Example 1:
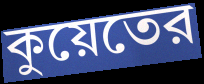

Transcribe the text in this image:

কুয়েতের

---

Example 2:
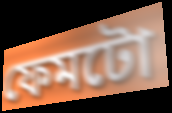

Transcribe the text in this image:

ফেমটো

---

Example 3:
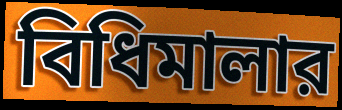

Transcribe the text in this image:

বিধিমালার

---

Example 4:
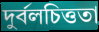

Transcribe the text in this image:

দুর্বলচিত্ততা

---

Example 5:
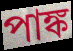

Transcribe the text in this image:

পাঙ্ক